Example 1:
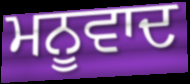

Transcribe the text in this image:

ਮਨੂਵਾਦ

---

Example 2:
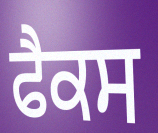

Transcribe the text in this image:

ਫੈਕਸ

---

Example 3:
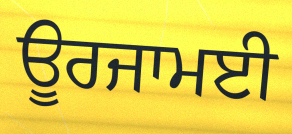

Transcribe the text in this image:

ਊਰਜਾਮਈ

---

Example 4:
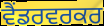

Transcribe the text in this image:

ਵੈਂਡਰਵਰਕਰ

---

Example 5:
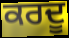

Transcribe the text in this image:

ਕਰਦੂ